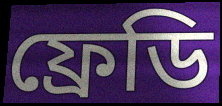
ফ্রেডি